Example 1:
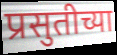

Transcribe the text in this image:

प्रसुतीच्या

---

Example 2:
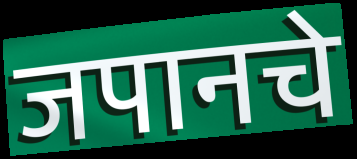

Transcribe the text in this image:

जपानचे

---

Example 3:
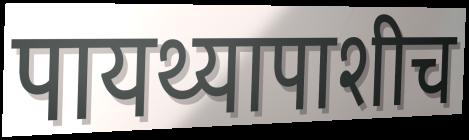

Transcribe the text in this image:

पायथ्यापाशीच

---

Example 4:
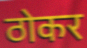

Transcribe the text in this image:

ठोकर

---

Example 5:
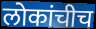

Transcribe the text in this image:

लोकांचीच